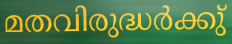
മതവിരുദ്ധർക്കു്